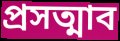
প্রসত্মাব